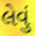
લેવું